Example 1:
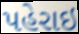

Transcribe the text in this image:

પહેરાઇ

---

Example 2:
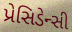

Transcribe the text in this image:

પ્રેસિડેન્સી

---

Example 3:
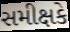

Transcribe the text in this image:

સમીક્ષકે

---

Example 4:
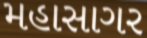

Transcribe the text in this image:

મહાસાગર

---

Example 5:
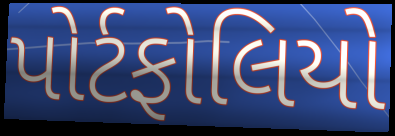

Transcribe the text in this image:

પોર્ટફોલિયો